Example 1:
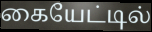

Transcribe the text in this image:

கையேட்டில்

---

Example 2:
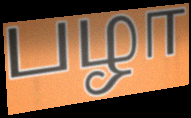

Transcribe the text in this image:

பழா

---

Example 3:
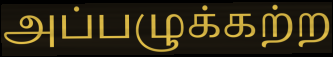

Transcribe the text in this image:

அப்பழுக்கற்ற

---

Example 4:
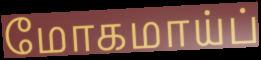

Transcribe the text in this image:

மோகமாய்ப்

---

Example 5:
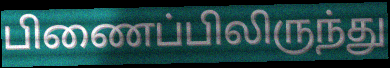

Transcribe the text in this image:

பிணைப்பிலிருந்து